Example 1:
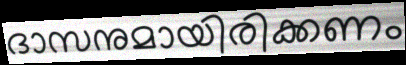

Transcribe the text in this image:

ദാസനുമായിരിക്കണം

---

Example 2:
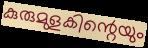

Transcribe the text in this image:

കുരുമുളകിന്റെയും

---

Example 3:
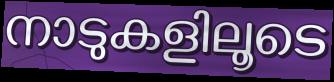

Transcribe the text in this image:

നാടുകളിലൂടെ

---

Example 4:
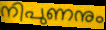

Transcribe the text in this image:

നിപുണനും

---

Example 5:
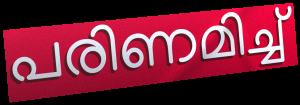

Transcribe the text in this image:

പരിണമിച്ച്